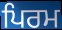
ਪਿਰਮ